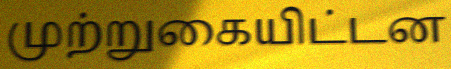
முற்றுகையிட்டன